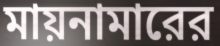
মায়নামারের